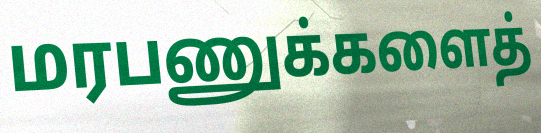
மரபணுக்களைத்